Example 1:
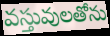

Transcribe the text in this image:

వస్తువులతోను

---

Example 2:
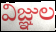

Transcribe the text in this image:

విజ్ఞుల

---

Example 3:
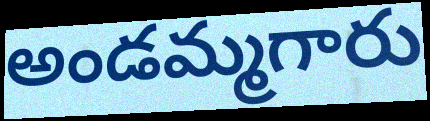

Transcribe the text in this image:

అండమ్మగారు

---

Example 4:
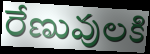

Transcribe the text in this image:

రేణువులకి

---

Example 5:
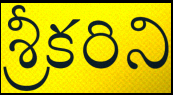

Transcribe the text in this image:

శ్రీకరిని